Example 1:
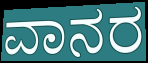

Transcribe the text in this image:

ವಾನರ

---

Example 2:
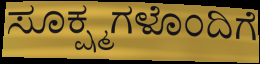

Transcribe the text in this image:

ಸೂಕ್ಷ್ಮಗಳೊಂದಿಗೆ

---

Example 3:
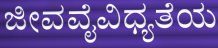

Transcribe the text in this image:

ಜೀವವೈವಿಧ್ಯತೆಯ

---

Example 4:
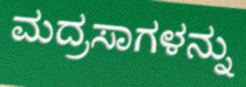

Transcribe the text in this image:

ಮದ್ರಸಾಗಳನ್ನು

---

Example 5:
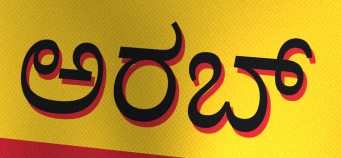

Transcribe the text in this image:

ಅರಬ್